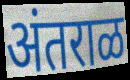
अंतराळ